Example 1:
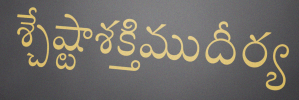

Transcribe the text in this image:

శ్చేష్టాశక్తిముదీర్య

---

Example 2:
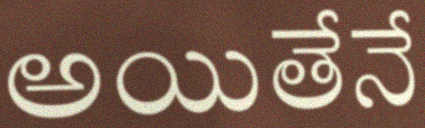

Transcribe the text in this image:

అయితేనే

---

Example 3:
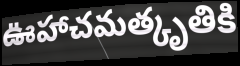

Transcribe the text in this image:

ఊహాచమత్కృతికి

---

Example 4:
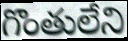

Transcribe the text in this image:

గొంతులేని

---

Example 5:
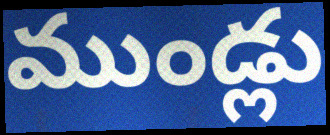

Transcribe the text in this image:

ముండ్లు